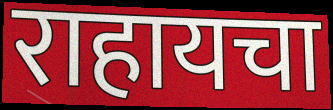
राहायचा